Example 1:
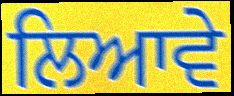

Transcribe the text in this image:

ਲਿਆਵੇ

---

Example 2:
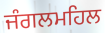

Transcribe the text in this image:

ਜੰਗਲਮਹਿਲ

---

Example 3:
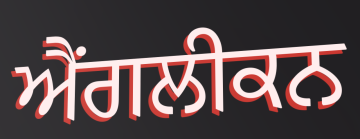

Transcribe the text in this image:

ਐਂਗਲੀਕਨ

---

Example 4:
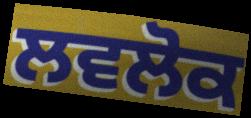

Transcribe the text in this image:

ਲਵਲੋਕ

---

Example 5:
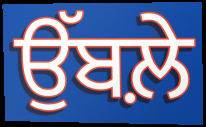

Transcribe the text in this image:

ਉੱਬਲ਼ੇ